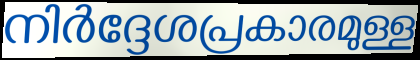
നിർദ്ദേശപ്രകാരമുള്ള